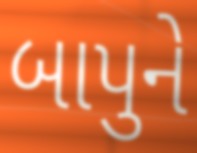
બાપુને